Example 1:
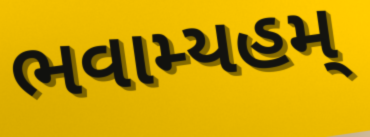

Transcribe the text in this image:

ભવામ્યહમ્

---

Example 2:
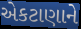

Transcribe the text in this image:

એકટાણાને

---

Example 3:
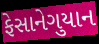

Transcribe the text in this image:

ફેસાનેગુયાન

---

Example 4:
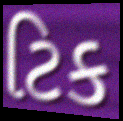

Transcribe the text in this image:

ટિક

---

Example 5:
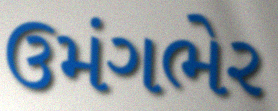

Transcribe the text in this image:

ઉમંગભેર